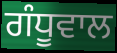
ਗੰਧੂਵਾਲ